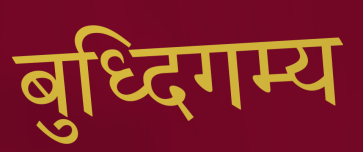
बुध्दिगम्य